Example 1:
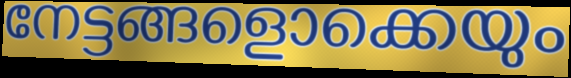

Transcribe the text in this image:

നേട്ടങ്ങളൊക്കെയും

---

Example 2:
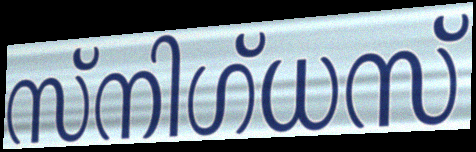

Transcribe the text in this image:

സ്നിഗ്ധസ്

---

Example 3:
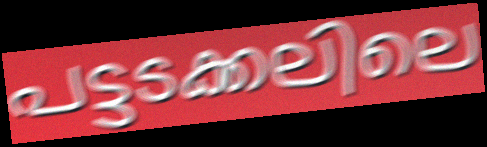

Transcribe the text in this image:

പട്ടടക്കലിലെ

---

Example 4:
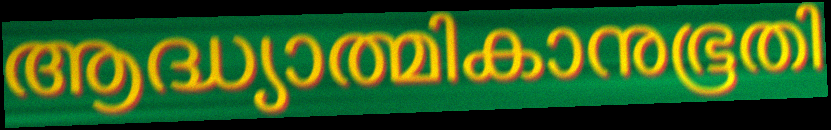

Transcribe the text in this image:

ആദ്ധ്യാത്മികാനുഭൂതി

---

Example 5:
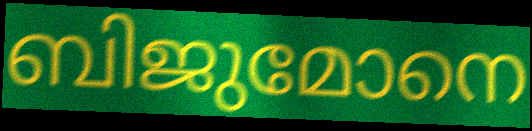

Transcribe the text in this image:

ബിജുമോനെ